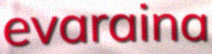
evaraina